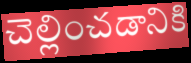
చెల్లించడానికి